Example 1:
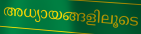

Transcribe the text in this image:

അധ്യായങ്ങളിലൂടെ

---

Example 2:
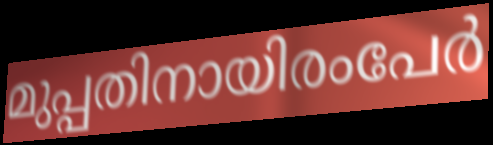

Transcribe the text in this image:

മുപ്പതിനായിരംപേർ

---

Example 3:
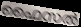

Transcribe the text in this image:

ഫൈസൽ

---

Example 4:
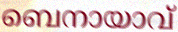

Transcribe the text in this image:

ബെനായാവ്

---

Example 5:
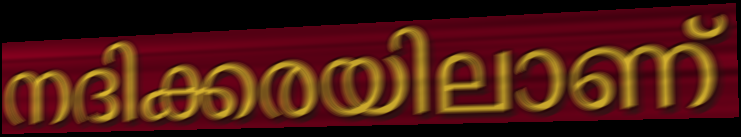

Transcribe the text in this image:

നദിക്കരയിലാണ്